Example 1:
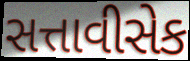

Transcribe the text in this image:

સત્તાવીસેક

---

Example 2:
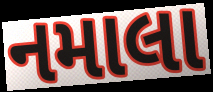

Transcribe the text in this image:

નમાલા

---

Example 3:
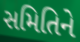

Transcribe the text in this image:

સમિતિને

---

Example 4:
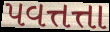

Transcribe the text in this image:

પવત્તત્તા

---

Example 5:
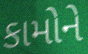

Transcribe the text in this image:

કામોને